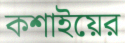
কশাইয়ের